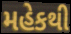
મહેકથી